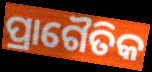
ପ୍ରାଗୈତିକ